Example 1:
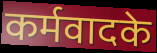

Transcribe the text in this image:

कर्मवादके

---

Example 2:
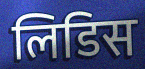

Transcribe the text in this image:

लिडिस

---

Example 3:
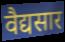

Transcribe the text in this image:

वैद्यसार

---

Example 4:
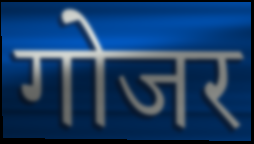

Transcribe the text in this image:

गोजर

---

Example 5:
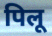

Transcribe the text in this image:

पिलू